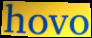
hovo